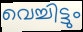
വെച്ചിട്ടും